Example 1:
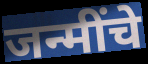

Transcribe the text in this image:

जन्मींचे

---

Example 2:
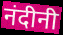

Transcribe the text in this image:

नंदीनी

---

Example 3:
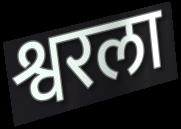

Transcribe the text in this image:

श्वरला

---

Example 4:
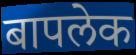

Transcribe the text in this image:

बापलेक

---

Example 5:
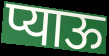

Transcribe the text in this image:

प्याऊ